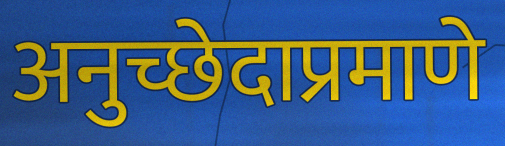
अनुच्छेदाप्रमाणे